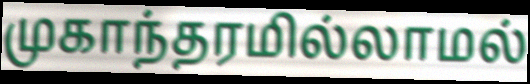
முகாந்தரமில்லாமல்